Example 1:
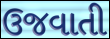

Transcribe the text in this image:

ઉજવાતી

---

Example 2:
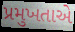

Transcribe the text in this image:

પ્રમુખતાએ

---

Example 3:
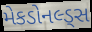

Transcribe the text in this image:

મેકડોનલ્ડ્સ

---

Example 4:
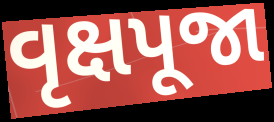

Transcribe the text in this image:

વૃક્ષપૂજા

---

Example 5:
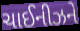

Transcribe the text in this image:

ચાઈનીઝને